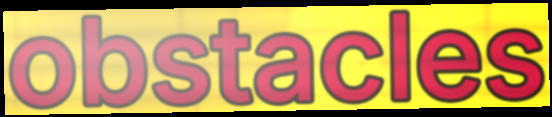
obstacles